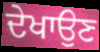
ਦੇਖਾਉਣ